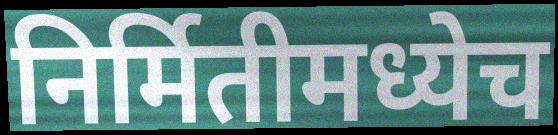
निर्मितीमध्येच